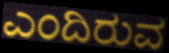
ಎಂದಿರುವ